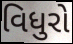
વિધુરો